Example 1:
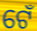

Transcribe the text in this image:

ଟେଁ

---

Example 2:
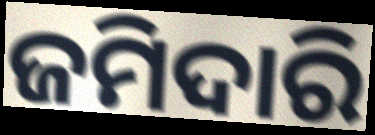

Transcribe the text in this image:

ଜମିଦାରି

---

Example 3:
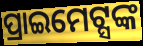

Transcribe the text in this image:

ପ୍ରାଇମେଟ୍ସଙ୍କ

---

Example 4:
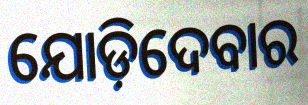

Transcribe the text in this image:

ଯୋଡ଼ିଦେବାର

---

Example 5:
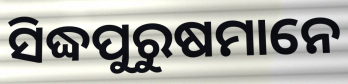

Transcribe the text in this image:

ସିଦ୍ଧପୁରୁଷମାନେ